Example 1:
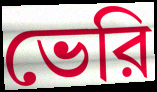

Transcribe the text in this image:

ভেরি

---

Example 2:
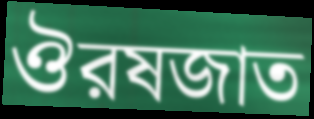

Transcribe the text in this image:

ঔরষজাত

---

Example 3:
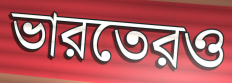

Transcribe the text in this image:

ভারতেরও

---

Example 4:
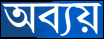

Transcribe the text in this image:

অব্যয়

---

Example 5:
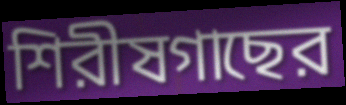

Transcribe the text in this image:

শিরীষগাছের